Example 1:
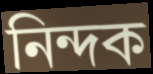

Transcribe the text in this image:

নিন্দক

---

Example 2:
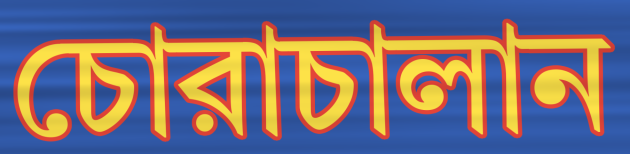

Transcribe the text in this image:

চোরাচালান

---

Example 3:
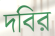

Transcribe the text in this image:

দবির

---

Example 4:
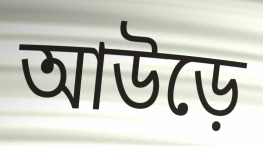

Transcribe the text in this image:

আউড়ে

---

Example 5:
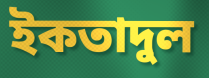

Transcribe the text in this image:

ইকতাদুল